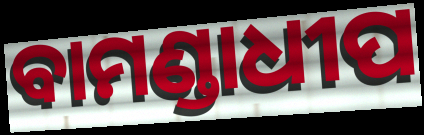
ବାମଣ୍ଡାଧୀପ